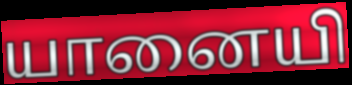
யானையி